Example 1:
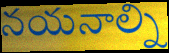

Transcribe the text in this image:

నయనాల్ని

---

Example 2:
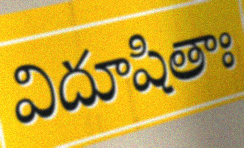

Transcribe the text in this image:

విదూషితాః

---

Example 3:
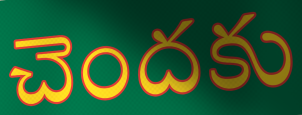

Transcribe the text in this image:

చెందకు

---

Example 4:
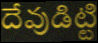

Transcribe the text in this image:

దేవుడిట్టి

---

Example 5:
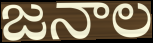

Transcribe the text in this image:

జనాల